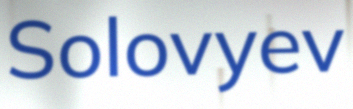
Solovyev